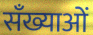
सँख्याओं